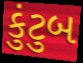
કુંટુબ